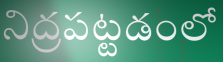
నిద్రపట్టడంలో